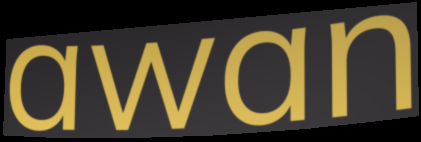
awan